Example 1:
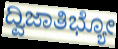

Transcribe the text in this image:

ದ್ವಿಜಾತಿಭ್ಯೋ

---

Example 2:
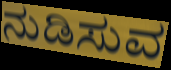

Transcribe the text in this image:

ನುಡಿಸುವ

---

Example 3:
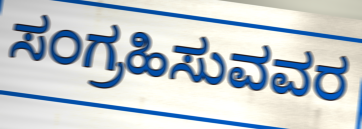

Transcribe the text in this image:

ಸಂಗ್ರಹಿಸುವವರ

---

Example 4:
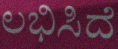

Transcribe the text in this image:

ಲಭಿಸಿದೆ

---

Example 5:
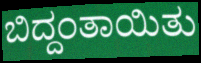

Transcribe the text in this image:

ಬಿದ್ದಂತಾಯಿತು